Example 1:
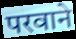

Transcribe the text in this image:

परवाने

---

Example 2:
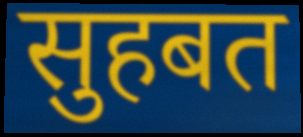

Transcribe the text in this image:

सुहबत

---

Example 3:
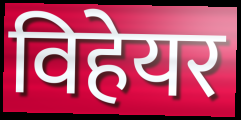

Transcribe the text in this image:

विहेयर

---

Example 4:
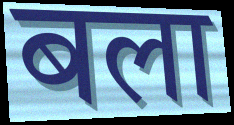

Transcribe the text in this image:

बला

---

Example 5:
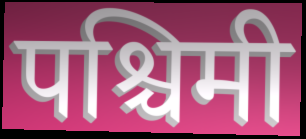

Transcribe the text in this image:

पश्चिमी